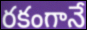
రకంగానే